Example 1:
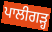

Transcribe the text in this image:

ਪਾਲੀਗੜ੍ਹ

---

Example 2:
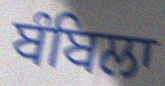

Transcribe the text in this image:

ਬੰਬਿਲਾ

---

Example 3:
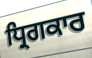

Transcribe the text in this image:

ਧ੍ਰਿਗਕਾਰ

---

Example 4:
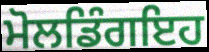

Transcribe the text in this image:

ਮੋਲਡਿੰਗਇਹ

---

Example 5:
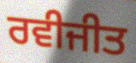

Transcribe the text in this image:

ਰਵੀਜੀਤ